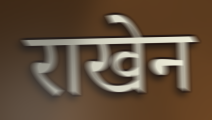
राखेन